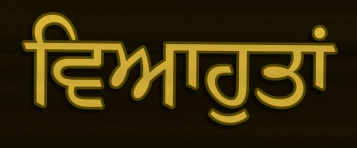
ਵਿਆਹੁਤਾਂ